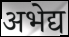
अभेद्य